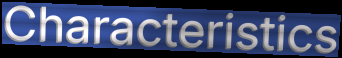
Characteristics